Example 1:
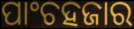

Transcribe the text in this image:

ପାଂଚହଜାର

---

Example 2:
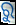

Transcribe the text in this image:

ରୁ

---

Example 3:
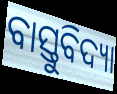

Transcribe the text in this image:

ବାସ୍ତୁବିଦ୍ୟା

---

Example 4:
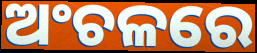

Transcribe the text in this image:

ଅଂଚଳରେ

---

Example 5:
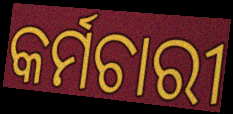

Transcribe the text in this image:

କର୍ମଚାରୀ